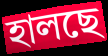
হালছে